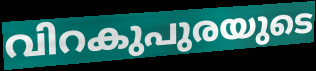
വിറകുപുരയുടെ